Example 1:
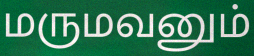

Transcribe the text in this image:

மருமவனும்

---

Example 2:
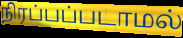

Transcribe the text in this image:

நிரப்பப்படாமல்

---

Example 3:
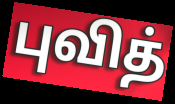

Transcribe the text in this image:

புவித்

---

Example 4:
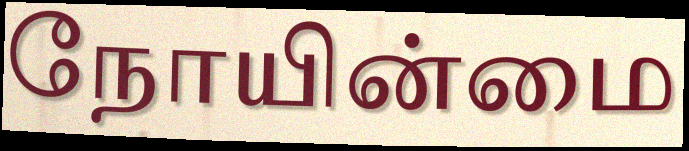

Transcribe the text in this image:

நோயின்மை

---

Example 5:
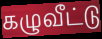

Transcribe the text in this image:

கழுவீட்டு